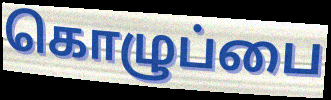
கொழுப்பை